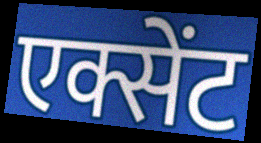
एक्सेंट